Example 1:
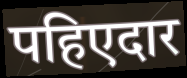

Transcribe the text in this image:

पहिएदार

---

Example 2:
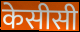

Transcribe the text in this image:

केसीसी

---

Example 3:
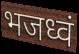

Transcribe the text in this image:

भजध्वं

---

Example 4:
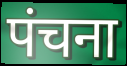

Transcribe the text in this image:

पंचना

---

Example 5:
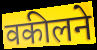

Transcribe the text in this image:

वकीलने